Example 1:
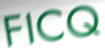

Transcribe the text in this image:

FICQ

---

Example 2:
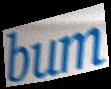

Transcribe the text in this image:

bum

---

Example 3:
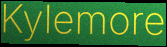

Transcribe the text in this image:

Kylemore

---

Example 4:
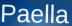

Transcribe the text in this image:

Paella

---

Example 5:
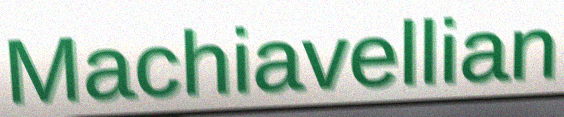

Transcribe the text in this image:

Machiavellian